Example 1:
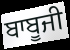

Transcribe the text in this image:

ਬਾਬੂਜੀ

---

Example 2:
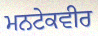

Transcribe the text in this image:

ਮਨਟੇਕਵੀਰ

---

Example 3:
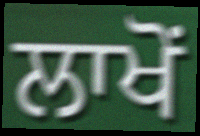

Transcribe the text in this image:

ਲਾਖੋਂ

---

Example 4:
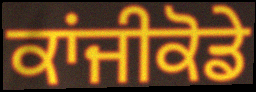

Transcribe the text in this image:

ਕਾਂਜੀਕੋਡੇ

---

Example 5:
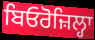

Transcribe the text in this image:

ਬਿਓਰੋਜ਼ਿਲ੍ਹਾ